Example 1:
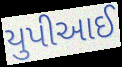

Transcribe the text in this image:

યુપીઆઈ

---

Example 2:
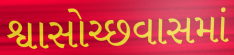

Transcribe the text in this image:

શ્વાસોચ્છવાસમાં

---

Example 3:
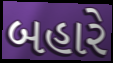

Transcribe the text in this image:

બહારે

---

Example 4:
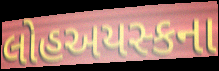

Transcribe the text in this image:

લોહઅયસ્કના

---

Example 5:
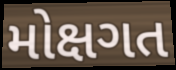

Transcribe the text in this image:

મોક્ષગત